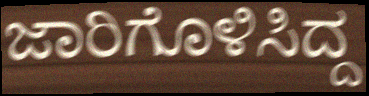
ಜಾರಿಗೊಳಿಸಿದ್ದ